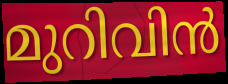
മുറിവിൻ